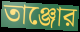
তাঞ্জোর